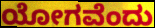
ಯೋಗವೆಂದು